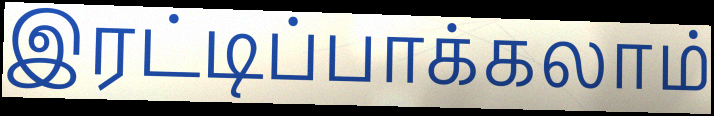
இரட்டிப்பாக்கலாம்